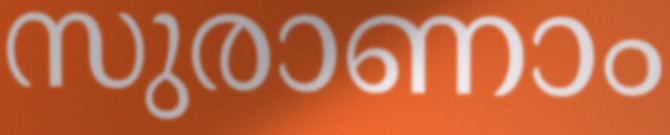
സുരാണാം